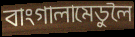
বাংগালামেডুলৈ